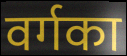
वर्गका